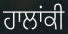
ਹਾਲਾਂਕੀ